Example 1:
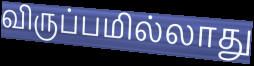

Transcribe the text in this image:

விருப்பமில்லாது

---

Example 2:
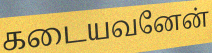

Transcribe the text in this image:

கடையவனேன்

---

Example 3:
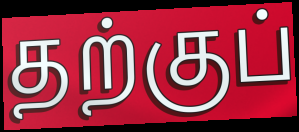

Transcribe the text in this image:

தற்குப்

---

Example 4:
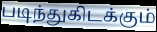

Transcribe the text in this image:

படிந்துகிடக்கும்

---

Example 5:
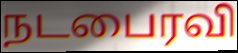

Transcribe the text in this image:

நடபைரவி